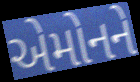
એમોનને